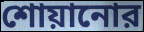
শোয়ানোর